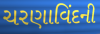
ચરણાવિંદની